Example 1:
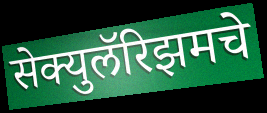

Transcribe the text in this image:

सेक्युलॅरिझमचे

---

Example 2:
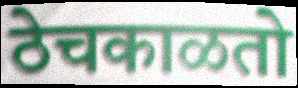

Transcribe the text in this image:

ठेचकाळतो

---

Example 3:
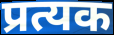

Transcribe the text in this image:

प्रत्यक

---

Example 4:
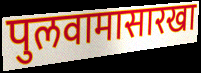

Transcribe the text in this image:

पुलवामासारखा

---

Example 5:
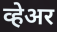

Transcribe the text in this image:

व्हेअर